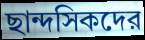
ছান্দসিকদের